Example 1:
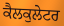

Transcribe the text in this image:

ਕੈਲਕੁਲੇਟਰ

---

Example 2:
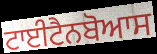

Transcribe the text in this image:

ਟਾਈਟੈਨਬੋਆਸ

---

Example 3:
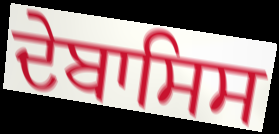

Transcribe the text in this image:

ਦੇਬਾਸਿਸ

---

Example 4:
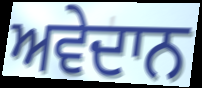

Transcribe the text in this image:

ਅਵੇਦਾਨ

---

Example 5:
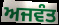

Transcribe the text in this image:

ਅਜਵੰਤ